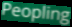
Peopling